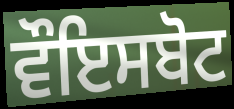
ਵੌਇਸਬੋਟ